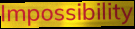
Impossibility